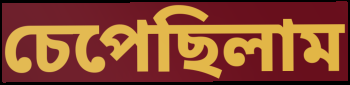
চেপেছিলাম